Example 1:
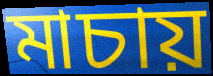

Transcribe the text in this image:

মাচায়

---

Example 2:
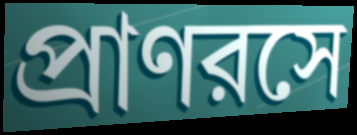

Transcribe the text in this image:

প্রাণরসে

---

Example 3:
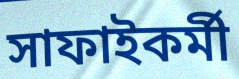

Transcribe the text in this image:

সাফাইকর্মী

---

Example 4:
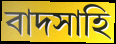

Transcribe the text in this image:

বাদসাহি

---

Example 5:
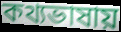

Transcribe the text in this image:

কথ্যভাষায়